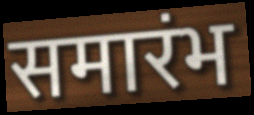
समारंभ